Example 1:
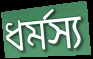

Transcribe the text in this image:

ধৰ্মস্য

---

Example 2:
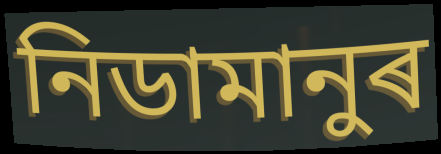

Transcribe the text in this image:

নিডামানুৰ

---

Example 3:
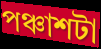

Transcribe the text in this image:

পঞ্চাশটা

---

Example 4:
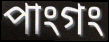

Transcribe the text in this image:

পাংগং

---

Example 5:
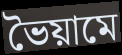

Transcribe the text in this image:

ভৈয়ামে